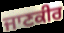
ਜਾਣਕੀਰ